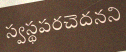
స్వస్థపరచెదనని